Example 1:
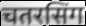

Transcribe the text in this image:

चतरसिंग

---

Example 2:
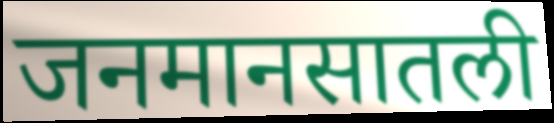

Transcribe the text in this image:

जनमानसातली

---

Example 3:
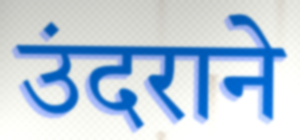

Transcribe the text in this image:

उंदराने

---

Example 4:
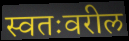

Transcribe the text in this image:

स्वतःवरील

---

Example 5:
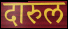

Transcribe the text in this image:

दारुल